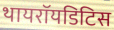
थायरॉयडिटिस